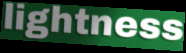
lightness